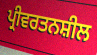
ਪ੍ਰੀਵਰਤਨਸ਼ੀਲ